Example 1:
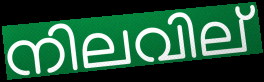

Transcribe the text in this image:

നിലവില്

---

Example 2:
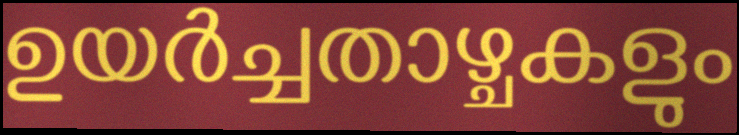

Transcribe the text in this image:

ഉയർച്ചതാഴ്ചകളും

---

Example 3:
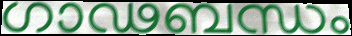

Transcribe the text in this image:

ഗാഢബന്ധം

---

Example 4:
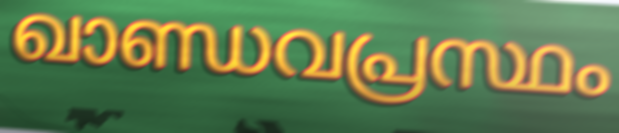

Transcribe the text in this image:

ഖാണ്ഡവപ്രസ്ഥം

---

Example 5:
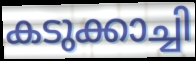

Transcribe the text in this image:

കടുക്കാച്ചി